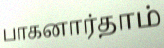
பாகனார்தாம்